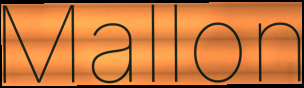
Mallon